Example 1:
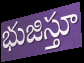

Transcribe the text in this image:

భుజిస్తూ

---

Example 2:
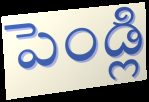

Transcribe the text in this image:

పెండ్లి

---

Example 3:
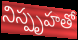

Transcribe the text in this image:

నిస్పృహతో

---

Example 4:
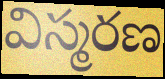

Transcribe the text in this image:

విస్మరణ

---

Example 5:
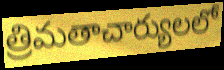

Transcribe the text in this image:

త్రిమతాచార్యులలో